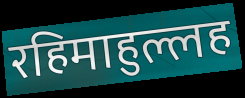
रहिमाहुल्लह